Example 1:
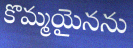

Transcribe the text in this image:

కొమ్మయైనను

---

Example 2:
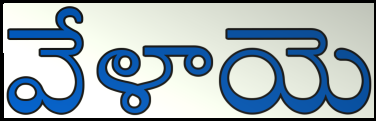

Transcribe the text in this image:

వేళాయె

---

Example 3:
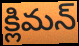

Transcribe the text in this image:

క్లిమన్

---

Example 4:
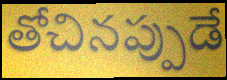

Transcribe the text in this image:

తోచినప్పుడే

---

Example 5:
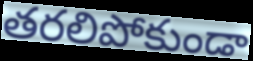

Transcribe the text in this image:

తరలిపోకుండా